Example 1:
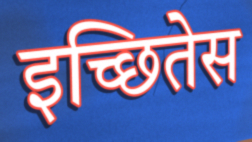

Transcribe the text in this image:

इच्छितेस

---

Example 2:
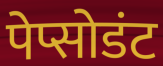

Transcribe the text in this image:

पेप्सोडंट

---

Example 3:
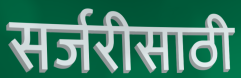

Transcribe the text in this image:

सर्जरीसाठी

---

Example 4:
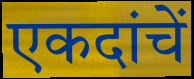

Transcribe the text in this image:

एकदांचें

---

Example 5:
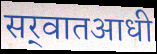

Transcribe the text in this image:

सर्वातआधी